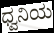
ಧ್ವನಿಯ